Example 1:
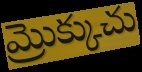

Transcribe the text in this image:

మ్రొక్కుచు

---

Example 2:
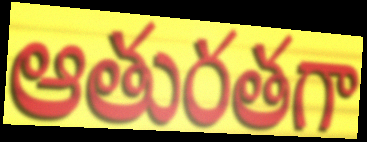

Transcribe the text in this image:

ఆతురతగా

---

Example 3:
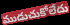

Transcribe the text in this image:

ముడుచుకోలేదు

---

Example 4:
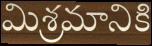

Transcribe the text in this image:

మిశ్రమానికి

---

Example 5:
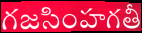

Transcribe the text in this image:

గజసింహగతీ